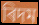
ৰিদম